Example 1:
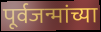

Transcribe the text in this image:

पूर्वजन्मांच्या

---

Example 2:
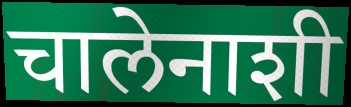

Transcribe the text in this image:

चालेनाशी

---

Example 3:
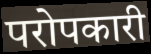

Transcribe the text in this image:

परोपकारी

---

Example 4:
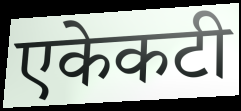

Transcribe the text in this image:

एकेकटी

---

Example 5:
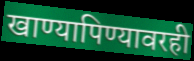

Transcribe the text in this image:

खाण्यापिण्यावरही